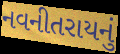
નવનીતરાયનું